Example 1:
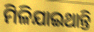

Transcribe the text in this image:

ମିଳିଯାଇଥାନ୍ତି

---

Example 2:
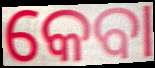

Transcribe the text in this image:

କେବା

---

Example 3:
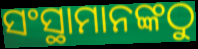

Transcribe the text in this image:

ସଂସ୍ଥାମାନଙ୍କଠୁ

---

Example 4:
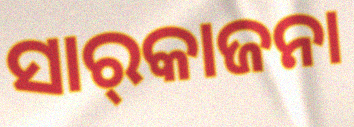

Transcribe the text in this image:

ସାର୍‌କାଜନା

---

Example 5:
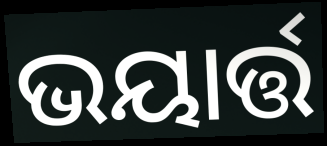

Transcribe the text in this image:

ଭୟାର୍ତ୍ତ